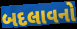
બદલાવનો